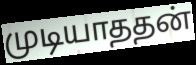
முடியாததன்